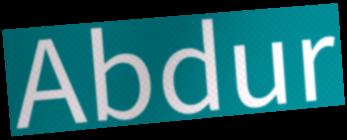
Abdur